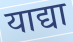
याद्या